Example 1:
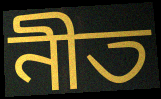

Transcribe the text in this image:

নীত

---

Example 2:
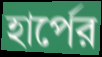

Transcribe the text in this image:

হার্পের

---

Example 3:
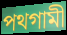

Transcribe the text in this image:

পথগামী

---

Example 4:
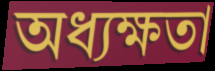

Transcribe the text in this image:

অধ্যক্ষতা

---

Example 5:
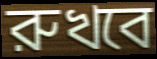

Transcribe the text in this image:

রুখবে